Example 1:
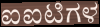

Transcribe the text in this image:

ಐಐಟಿಗಳ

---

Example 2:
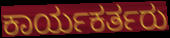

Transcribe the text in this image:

ಕಾರ್ಯಕರ್ತರು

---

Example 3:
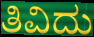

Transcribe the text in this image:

ತಿವಿದು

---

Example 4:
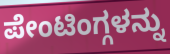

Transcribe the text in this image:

ಪೇಂಟಿಂಗ್ಗಳನ್ನು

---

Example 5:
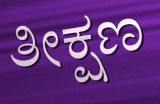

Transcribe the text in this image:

ತೀಕ್ಷಣ